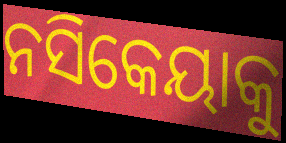
ନସିକେୟାକୁ